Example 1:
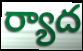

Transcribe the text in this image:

ర్యాద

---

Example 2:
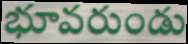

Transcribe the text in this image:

భూవరుండు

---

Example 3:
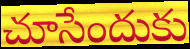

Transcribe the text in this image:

చూసేందుకు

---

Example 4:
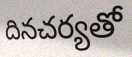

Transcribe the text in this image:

దినచర్యతో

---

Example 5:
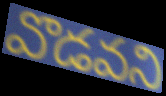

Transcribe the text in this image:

వొడవని